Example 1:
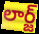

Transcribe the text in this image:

లార్జ్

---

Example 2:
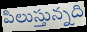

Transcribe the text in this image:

పిలుస్తున్నది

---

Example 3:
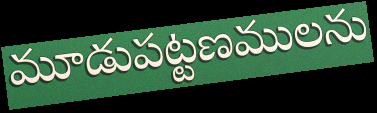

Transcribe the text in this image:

మూడుపట్టణములను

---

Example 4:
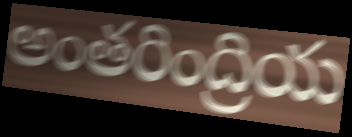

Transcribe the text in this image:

అంతరింద్రియ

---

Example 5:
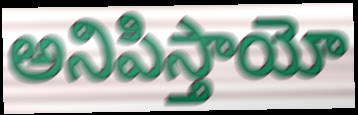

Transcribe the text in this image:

అనిపిస్తాయో